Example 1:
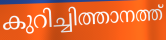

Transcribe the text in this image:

കുറിച്ചിത്താനത്ത്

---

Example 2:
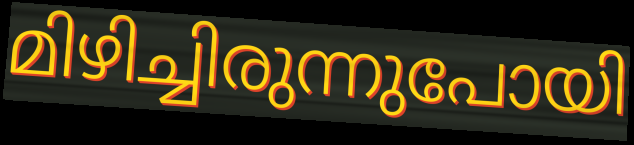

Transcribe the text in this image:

മിഴിച്ചിരുന്നുപോയി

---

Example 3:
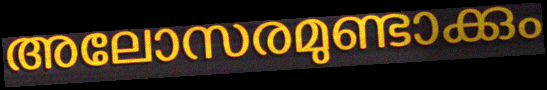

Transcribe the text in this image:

അലോസരമുണ്ടാക്കും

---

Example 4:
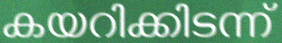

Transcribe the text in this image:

കയറിക്കിടന്ന്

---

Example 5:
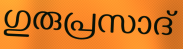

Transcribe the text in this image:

ഗുരുപ്രസാദ്